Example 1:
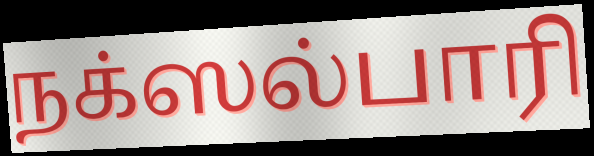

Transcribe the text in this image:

நக்ஸல்பாரி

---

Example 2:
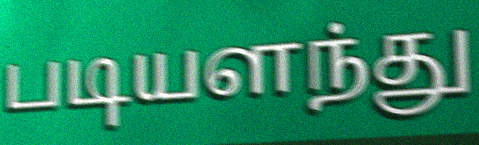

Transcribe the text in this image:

படியளந்து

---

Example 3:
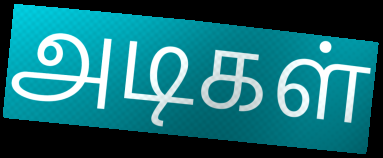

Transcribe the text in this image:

அடிகள்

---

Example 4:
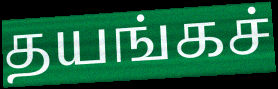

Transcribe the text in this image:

தயங்கச்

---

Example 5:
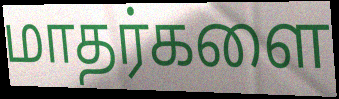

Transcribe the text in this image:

மாதர்களை